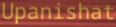
Upanishat